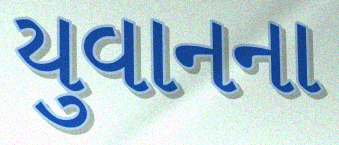
યુવાનના